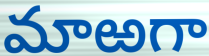
మాఱగా